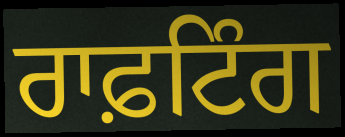
ਰਾਫ਼ਟਿੰਗ